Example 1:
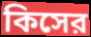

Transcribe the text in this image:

কিসের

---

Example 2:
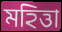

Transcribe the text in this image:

মহিত্তা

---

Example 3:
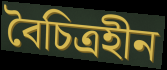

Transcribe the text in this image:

বৈচিত্রহীন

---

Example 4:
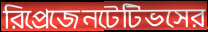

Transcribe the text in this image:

রিপ্রেজেনটেটিভসের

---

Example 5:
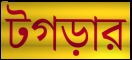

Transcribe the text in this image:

টগড়ার